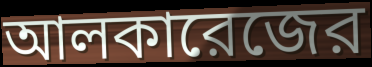
আলকারেজের